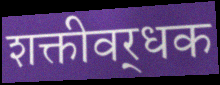
शक्तीवर्धक